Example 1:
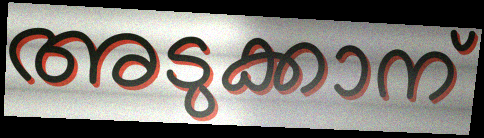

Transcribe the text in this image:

അടുക്കാന്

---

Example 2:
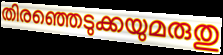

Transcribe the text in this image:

തിരഞ്ഞെടുക്കയുമരുതു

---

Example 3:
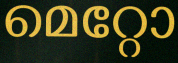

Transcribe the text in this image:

മെറ്റോ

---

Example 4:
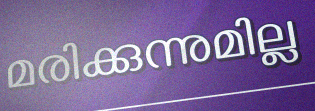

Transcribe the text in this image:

മരിക്കുന്നുമില്ല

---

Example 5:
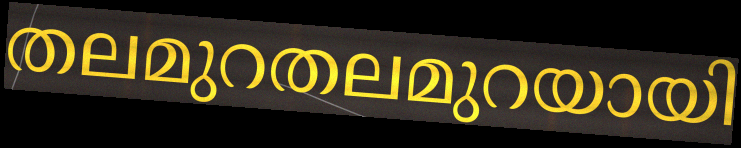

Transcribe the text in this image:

തലമുറതലമുറയായി